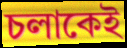
চলাকেই